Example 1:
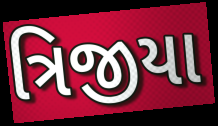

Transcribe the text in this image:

ત્રિજીયા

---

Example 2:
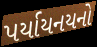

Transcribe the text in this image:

પર્યાયનયનો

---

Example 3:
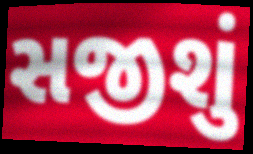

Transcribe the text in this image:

સજીશું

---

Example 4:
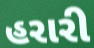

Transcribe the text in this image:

હરારી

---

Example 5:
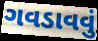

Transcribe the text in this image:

ગવડાવવું